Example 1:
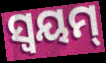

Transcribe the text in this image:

ସ୍ୱୟମ୍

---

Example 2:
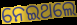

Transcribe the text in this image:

ନେଇଥଲେ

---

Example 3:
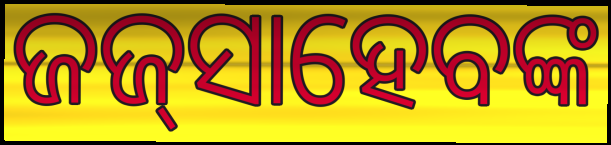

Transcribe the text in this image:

ଜଜ୍‍ସାହେବଙ୍କ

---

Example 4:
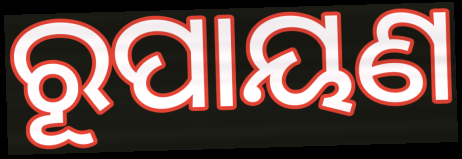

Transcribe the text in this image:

ରୂପାୟଣ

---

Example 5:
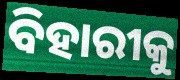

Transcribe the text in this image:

ବିହାରୀକୁ